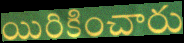
యిరికించారు